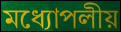
মধ্যোপলীয়